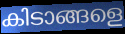
കിടാങ്ങളെ